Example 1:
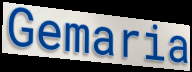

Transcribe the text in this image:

Gemaria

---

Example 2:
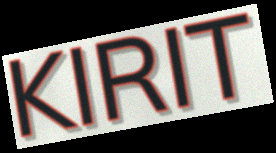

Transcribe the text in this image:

KIRIT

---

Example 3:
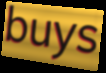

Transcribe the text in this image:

buys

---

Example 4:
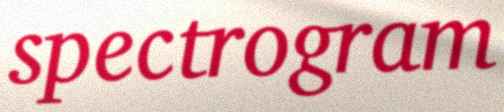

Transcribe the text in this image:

spectrogram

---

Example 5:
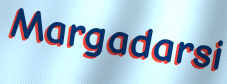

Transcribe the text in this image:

Margadarsi